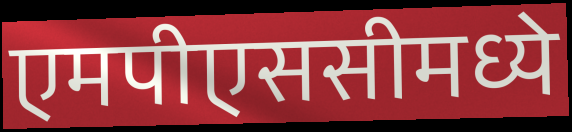
एमपीएससीमध्ये